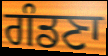
ਗੰਡਣਾ